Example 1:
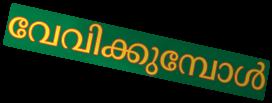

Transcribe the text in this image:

വേവിക്കുമ്പോൾ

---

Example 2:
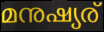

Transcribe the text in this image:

മനുഷ്യര്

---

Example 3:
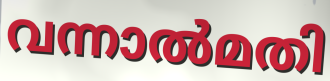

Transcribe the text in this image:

വന്നാൽമതി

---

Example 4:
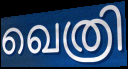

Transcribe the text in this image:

ഖെത്രി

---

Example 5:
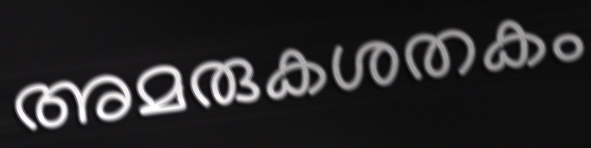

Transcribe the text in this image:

അമരുകശതകം